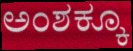
ಅಂಶಕ್ಕೂ